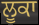
ਲੂਕਾ